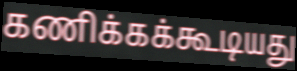
கணிக்கக்கூடியது